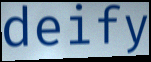
deify